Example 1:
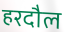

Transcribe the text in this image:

हरदौल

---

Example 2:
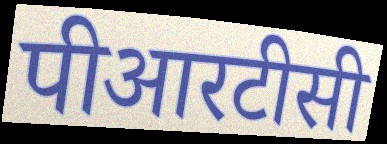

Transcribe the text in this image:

पीआरटीसी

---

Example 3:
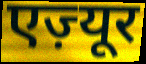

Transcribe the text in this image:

एज़्यूर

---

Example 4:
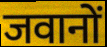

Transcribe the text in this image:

जवानों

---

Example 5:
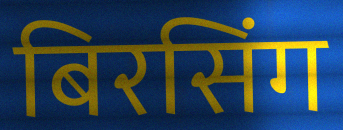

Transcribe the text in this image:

बिरसिंग